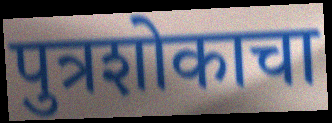
पुत्रशोकाचा